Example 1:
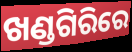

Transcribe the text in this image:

ଖଣ୍ଡଗିରିରେ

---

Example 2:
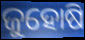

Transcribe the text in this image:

ଜୁହୋଷି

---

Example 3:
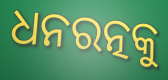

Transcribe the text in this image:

ଧନରତ୍ନକୁ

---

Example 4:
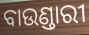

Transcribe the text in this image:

ବାଉଣ୍ଡାରୀ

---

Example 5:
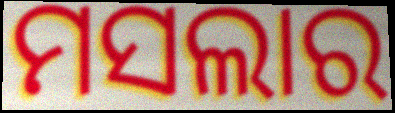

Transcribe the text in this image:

ମସଲାର